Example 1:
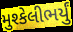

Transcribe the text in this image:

મુશ્કેલીભર્યું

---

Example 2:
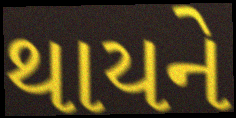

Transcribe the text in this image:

થાયને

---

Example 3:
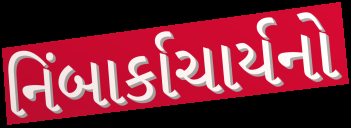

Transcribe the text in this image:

નિંબાર્કાચાર્યનો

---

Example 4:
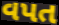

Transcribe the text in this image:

વપત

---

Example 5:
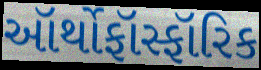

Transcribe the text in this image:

ઑર્થોફૉસ્ફૉરિક